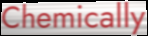
Chemically